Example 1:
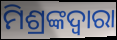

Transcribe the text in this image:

ମିଶ୍ରଙ୍କଦ୍ୱାରା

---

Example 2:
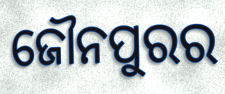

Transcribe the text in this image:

ଜୌନପୁରର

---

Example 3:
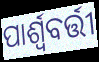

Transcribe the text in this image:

ପାର୍ଶ୍ୱବର୍ତ୍ତୀ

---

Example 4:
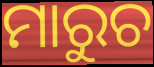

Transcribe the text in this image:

ମାରୁଚ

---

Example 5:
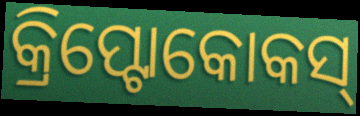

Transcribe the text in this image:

କ୍ରିପ୍ଟୋକୋକସ୍